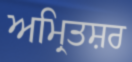
ਅਮ੍ਰਿਤਸ਼ਰ